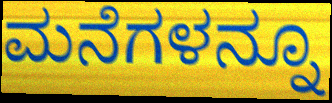
ಮನೆಗಳನ್ನೂ